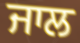
ਜਾਲ